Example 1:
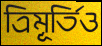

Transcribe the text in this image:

ত্ৰিমূৰ্তিও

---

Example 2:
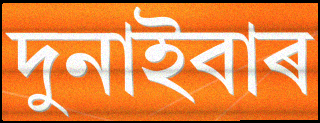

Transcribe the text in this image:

দুনাইবাৰ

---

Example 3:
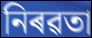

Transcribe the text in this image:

নিৰৱতা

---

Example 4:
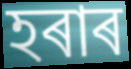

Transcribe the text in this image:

হৰাৰ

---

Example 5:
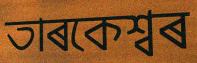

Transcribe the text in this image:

তাৰকেশ্বৰ